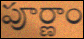
పూర్ణాం